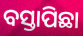
ବସ୍ତାପିଛା